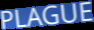
PLAGUE